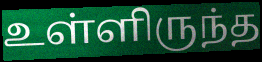
உள்ளிருந்த